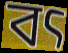
বৎ